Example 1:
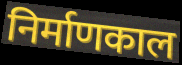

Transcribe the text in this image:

निर्माणकाल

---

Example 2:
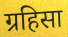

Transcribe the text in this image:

ग्रहिसा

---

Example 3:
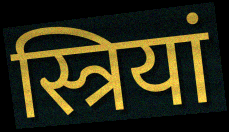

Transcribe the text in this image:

स्त्रियां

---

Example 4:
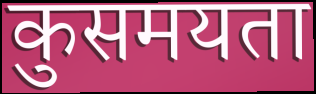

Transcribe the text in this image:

कुसमयता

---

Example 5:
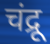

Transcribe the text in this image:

चंद्रू